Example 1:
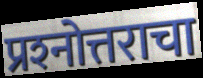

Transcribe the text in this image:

प्रश्‍नोत्तराचा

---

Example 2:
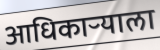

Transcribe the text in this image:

आधिकाऱ्याला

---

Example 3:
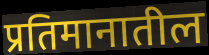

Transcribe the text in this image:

प्रतिमानातील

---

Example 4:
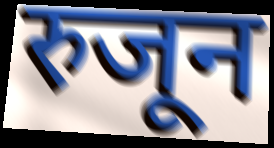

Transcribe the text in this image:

रुजून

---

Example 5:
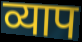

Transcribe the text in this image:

व्याप